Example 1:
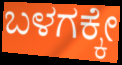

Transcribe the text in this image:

ಬಳಗಕ್ಕೇ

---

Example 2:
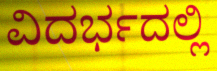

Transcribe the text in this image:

ವಿದರ್ಭದಲ್ಲಿ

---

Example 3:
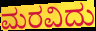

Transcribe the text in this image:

ಮರವಿದು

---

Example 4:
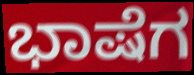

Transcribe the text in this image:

ಭಾಷೆಗ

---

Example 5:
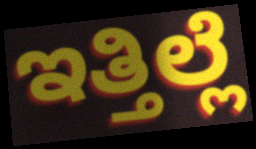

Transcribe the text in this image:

ಇತ್ತಿಲ್ಲೆ